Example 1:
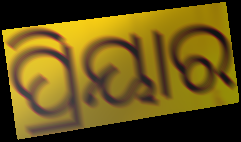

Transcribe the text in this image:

ପ୍ରିୟାର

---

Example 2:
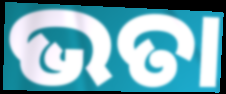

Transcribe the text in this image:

ଭତା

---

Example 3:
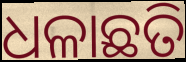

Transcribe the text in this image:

ଧଳାଛତି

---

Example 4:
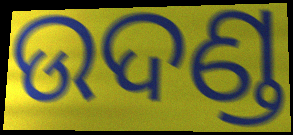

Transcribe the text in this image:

ଉଦଣ୍ଡ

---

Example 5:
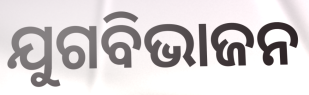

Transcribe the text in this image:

ଯୁଗବିଭାଜନ